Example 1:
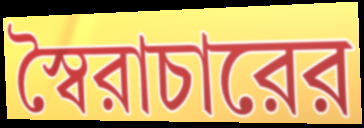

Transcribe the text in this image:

স্বৈরাচারের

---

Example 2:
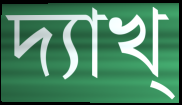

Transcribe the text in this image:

দ্যাখ্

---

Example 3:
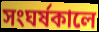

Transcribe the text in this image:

সংঘর্ষকালে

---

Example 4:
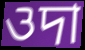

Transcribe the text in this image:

ওদা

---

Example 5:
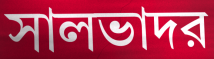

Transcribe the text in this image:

সালভাদর